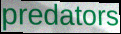
predators